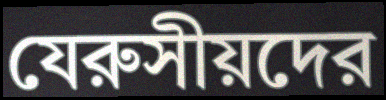
যেরুসীয়দের